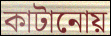
কাটানোয়